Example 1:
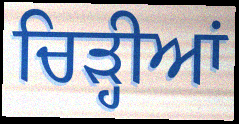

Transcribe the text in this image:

ਚਿੜ੍ਹੀਆਂ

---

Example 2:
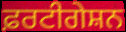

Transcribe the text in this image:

ਫ਼ਰਟੀਗੇਸ਼ਨ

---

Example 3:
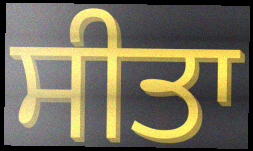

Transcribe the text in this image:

ਸੀਤਾ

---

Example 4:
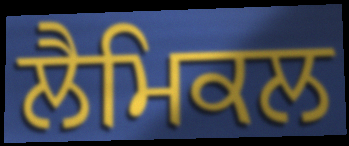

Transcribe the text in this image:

ਲੈਮਿਕਲ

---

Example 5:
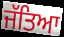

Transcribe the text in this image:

ਜੱਤਿਆ